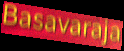
Basavaraja